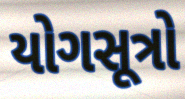
યોગસૂત્રો